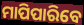
ମାପିପାରିବେ